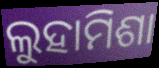
ଲୁହାମିଶା